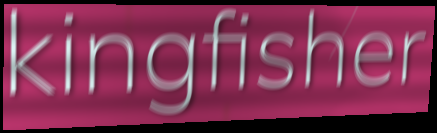
kingfisher